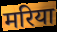
मरिया